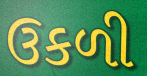
ઉકળી